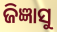
ଜିଜ୍ଞାସୁ